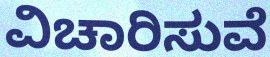
ವಿಚಾರಿಸುವೆ